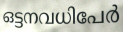
ഒട്ടനവധിപേർ